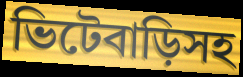
ভিটেবাড়িসহ